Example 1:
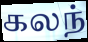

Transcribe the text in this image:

கலந்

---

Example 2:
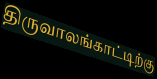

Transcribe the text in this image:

திருவாலங்காட்டிற்கு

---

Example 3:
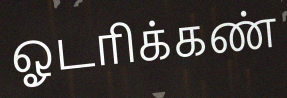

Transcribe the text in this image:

ஓடரிக்கண்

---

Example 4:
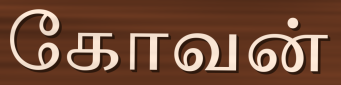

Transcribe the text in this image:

கோவன்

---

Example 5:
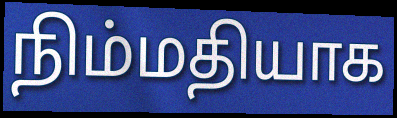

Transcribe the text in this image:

நிம்மதியாக